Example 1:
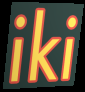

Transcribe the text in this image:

iki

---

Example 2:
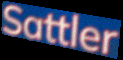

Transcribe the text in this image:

Sattler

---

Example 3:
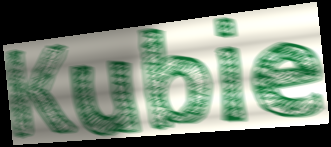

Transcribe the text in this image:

Kubie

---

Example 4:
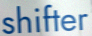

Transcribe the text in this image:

shifter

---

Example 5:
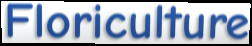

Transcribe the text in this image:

Floriculture